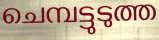
ചെമ്പട്ടുടുത്ത